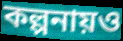
কল্পনায়ও